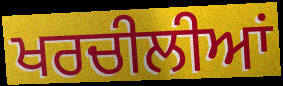
ਖਰਚੀਲੀਆਂ